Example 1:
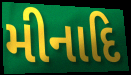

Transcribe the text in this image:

મીનાદિ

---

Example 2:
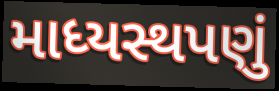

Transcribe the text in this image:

માધ્યસ્થપણું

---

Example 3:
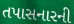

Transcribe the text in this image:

તપાસનારની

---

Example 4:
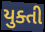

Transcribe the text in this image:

યુક્તી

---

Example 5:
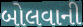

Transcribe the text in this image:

બોલવાની